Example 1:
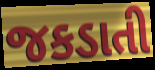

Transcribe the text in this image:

જકડાતી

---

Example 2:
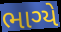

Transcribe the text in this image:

ભાગ્યે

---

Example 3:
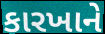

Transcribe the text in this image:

કારખાને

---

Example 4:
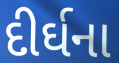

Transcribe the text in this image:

દીર્ઘના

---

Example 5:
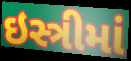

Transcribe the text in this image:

ઇસ્ત્રીમાં